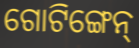
ଗୋଟିଙ୍ଗେନ୍